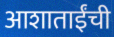
आशाताईंची